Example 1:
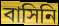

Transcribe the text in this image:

বাসিনি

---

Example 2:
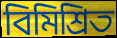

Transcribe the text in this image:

বিমিশ্রিত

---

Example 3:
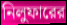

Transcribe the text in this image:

নিলুফারের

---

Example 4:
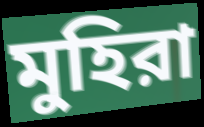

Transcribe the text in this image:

মুহিরা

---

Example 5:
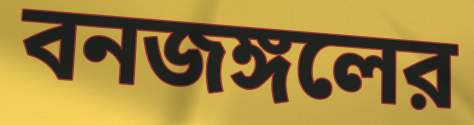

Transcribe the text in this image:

বনজঙ্গলের